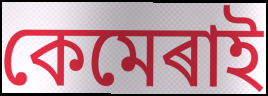
কেমেৰাই